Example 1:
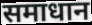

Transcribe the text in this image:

समाधान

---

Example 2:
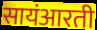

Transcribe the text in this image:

सायंआरती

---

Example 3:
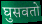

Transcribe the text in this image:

घुसवतो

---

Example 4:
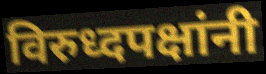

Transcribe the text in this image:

विरुध्दपक्षांनी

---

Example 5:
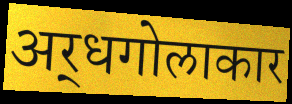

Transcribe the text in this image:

अर्धगोलाकार